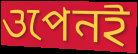
ওপেনই